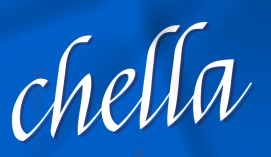
chella